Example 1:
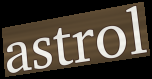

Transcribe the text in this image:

astrol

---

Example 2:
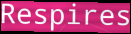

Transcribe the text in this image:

Respires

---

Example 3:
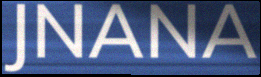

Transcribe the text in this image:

JNANA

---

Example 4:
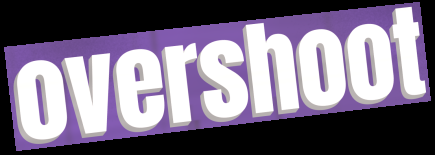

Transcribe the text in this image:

overshoot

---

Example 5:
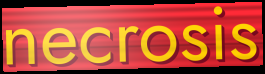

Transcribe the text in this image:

necrosis